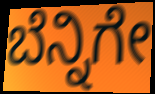
ಬೆನ್ನಿಗೇ